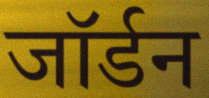
जॉर्डन